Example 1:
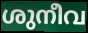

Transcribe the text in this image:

ശുനീവ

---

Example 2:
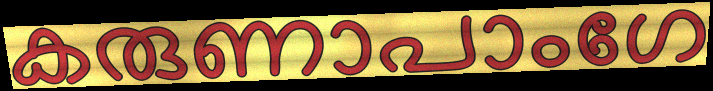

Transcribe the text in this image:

കരുണാപാംഗേ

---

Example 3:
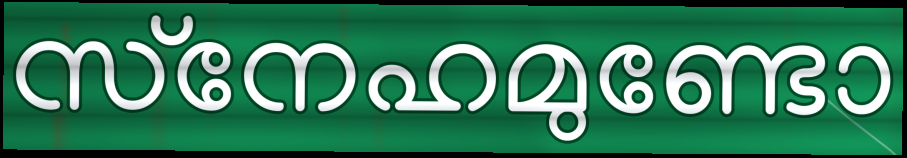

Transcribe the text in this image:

സ്‌നേഹമുണ്ടോ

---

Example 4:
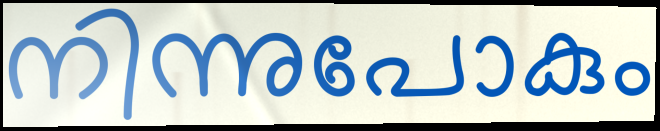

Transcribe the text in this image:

നിന്നുപോകും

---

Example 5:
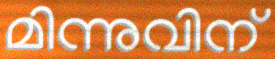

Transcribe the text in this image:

മിന്നുവിന്